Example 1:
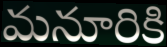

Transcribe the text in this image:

మనూరికి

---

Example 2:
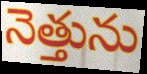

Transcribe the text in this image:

నెత్తును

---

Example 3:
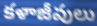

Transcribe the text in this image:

కళాజీవులు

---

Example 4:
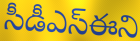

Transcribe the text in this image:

సీడీఎస్ఈని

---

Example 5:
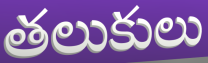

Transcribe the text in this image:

తలుకులు